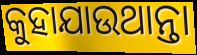
କୁହାଯାଉଥାନ୍ତା